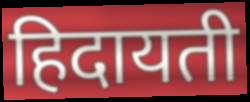
हिदायती